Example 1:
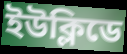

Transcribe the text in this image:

ইউক্লিডে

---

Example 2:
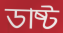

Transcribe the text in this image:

ডাষ্ট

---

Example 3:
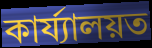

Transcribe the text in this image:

কাৰ্য্যালয়ত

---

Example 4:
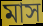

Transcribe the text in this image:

মাস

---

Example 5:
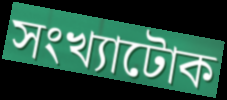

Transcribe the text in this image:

সংখ্যাটোক